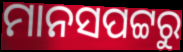
ମାନସପଟ୍ଟରୁ